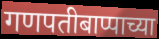
गणपतीबाप्पाच्या